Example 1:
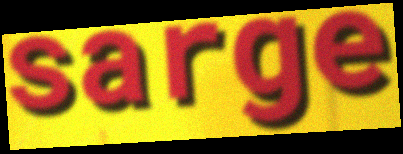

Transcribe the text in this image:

sarge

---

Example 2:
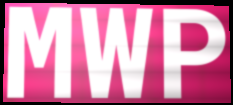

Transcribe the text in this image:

MWP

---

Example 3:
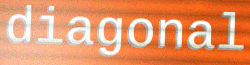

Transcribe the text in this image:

diagonal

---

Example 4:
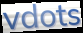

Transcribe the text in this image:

vdots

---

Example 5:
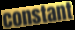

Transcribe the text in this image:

constant